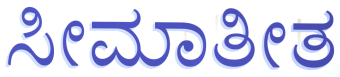
ಸೀಮಾತೀತ